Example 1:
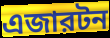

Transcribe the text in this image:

এজারটন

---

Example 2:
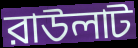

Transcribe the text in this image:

রাউলাট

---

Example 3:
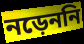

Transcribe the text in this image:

নড়েননি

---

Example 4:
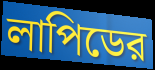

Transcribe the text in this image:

লাপিডের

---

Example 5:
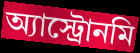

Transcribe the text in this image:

অ্যাস্ট্রোনমি